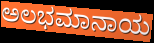
ಅಲಭಮಾನಾಯ